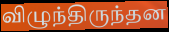
விழுந்திருந்தன